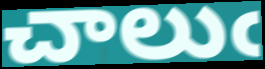
చాలుఁ